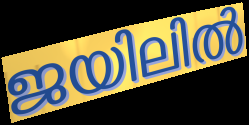
ജയിലിൽ